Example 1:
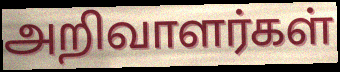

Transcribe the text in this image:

அறிவாளர்கள்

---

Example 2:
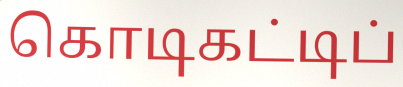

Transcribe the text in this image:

கொடிகட்டிப்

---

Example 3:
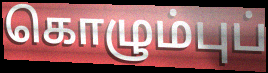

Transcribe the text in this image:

கொழும்புப்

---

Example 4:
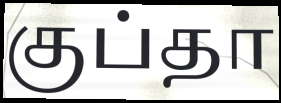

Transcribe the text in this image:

குப்தா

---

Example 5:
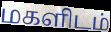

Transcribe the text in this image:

மகளிடம்